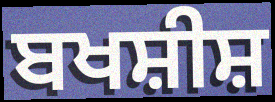
ਬਖਸ਼ੀਸ਼